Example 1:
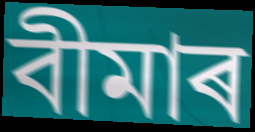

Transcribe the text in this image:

বীমাৰ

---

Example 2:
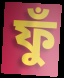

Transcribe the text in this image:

ফুঁ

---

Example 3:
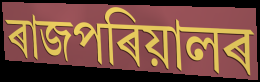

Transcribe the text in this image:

ৰাজপৰিয়ালৰ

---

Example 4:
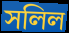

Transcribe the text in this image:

সলিল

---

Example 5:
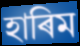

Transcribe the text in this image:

হাৰিম